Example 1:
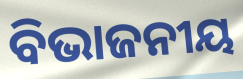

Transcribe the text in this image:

ବିଭାଜନୀୟ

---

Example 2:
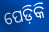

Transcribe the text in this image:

ପେଡ଼ିକି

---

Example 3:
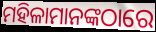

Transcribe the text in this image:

ମହିଳାମାନଙ୍କଠାରେ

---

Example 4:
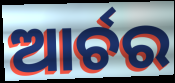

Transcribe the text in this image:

ଆର୍ଚର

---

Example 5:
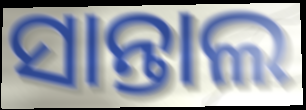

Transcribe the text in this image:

ସାନ୍ତାଲ